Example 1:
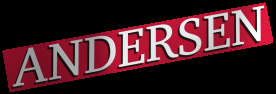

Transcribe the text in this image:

ANDERSEN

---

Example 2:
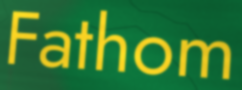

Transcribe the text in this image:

Fathom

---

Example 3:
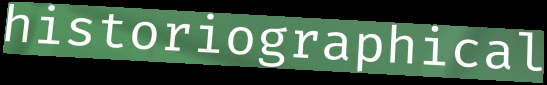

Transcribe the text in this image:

historiographical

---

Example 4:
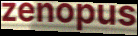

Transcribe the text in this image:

zenopus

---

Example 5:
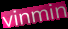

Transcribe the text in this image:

vinmin